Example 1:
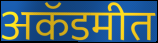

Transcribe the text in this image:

अकॅडमीत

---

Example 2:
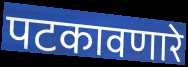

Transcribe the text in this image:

पटकावणारे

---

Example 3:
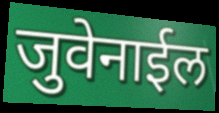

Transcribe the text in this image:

जुवेनाईल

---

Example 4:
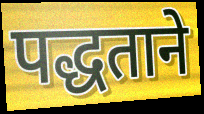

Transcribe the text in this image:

पद्धताने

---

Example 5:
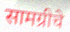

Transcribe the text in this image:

सामग्रीचे